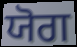
ਯੋਗ